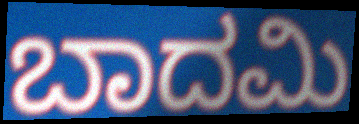
ಬಾದಮಿ